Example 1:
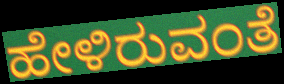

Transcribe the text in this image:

ಹೇಳಿರುವಂತೆ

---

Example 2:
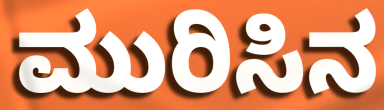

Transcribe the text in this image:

ಮುರಿಸಿನ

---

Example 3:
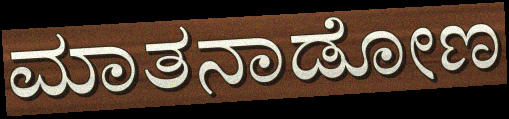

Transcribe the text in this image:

ಮಾತನಾಡೋಣ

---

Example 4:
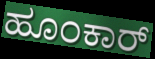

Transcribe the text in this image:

ಹೂಂಕಾರ್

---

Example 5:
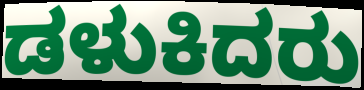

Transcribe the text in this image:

ಡಳುಕಿದರು